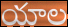
యాల